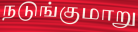
நடுங்குமாறு